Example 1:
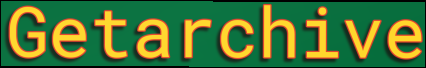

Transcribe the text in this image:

Getarchive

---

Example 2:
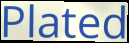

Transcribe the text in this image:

Plated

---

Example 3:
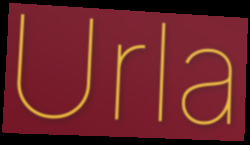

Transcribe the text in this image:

Urla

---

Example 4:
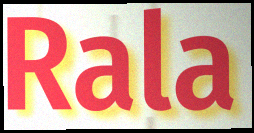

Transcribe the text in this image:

Rala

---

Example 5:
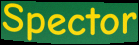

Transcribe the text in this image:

Spector